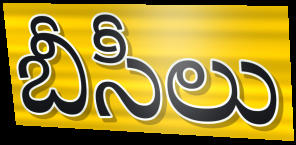
బీసీలు